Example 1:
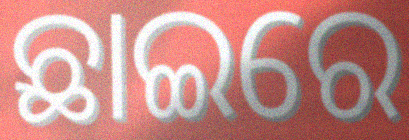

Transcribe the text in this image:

ଛାଇରେ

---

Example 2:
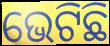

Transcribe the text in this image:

ଭେଟିଛି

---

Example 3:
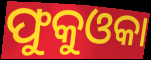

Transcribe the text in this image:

ଫୁକୁଓକା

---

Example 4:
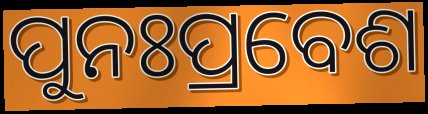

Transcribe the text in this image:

ପୁନଃପ୍ରବେଶ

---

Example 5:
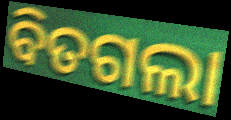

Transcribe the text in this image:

ବିତଗଲା